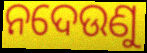
ନଦେଉଣୁ